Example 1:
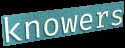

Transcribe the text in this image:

knowers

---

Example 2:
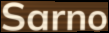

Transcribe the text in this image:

Sarno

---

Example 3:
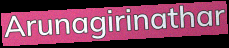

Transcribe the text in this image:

Arunagirinathar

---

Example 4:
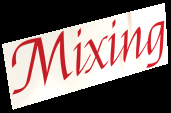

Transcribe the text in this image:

Mixing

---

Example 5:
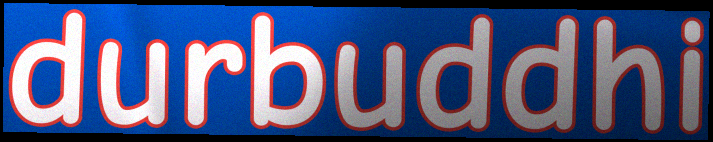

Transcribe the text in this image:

durbuddhi